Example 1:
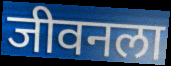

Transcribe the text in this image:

जीवनला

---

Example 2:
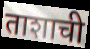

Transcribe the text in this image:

ताशाची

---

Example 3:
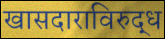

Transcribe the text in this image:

खासदाराविरुद्ध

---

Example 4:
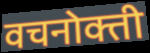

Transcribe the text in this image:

वचनोक्ती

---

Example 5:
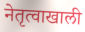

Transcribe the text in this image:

नेतृत्वाखाली